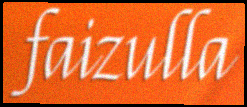
faizulla